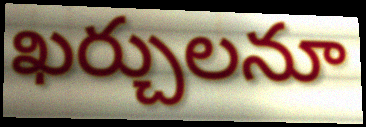
ఖర్చులనూ